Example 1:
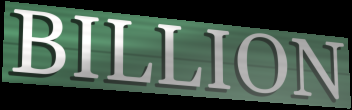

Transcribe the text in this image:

BILLION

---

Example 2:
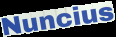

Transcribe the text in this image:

Nuncius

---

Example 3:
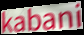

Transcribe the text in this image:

kabani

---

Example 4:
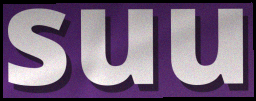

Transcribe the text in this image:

suu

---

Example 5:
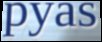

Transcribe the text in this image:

pyas